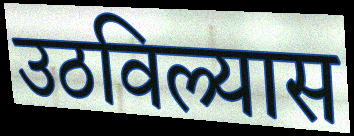
उठविल्यास